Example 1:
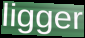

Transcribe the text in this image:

ligger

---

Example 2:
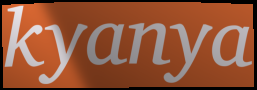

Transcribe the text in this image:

kyanya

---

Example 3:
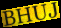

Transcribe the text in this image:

BHUJ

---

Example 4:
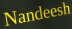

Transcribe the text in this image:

Nandeesh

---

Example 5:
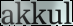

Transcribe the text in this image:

akkul